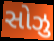
સોઝુ